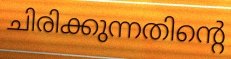
ചിരിക്കുന്നതിന്റെ